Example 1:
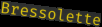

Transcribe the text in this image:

Bressolette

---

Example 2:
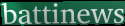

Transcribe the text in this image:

battinews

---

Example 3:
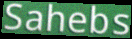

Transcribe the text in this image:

Sahebs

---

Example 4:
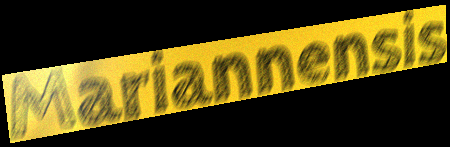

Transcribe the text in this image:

Mariannensis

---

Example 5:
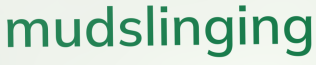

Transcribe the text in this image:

mudslinging